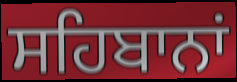
ਸਹਿਬਾਨਾਂ